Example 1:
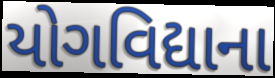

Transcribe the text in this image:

યોગવિદ્યાના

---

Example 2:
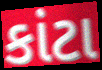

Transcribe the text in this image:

કાંટા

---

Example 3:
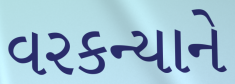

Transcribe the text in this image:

વરકન્યાને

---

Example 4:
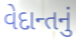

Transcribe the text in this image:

વેદાન્તનું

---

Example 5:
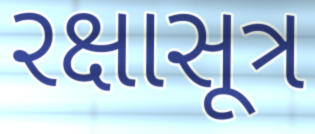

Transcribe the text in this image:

રક્ષાસૂત્ર